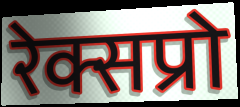
रेक्सप्रो